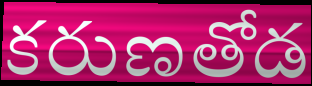
కరుణతోడ